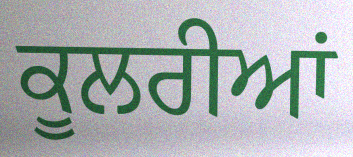
ਕੂਲਰੀਆਂ